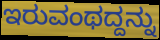
ಇರುವಂಥದ್ದನ್ನು